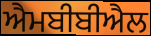
ਐਮਬੀਬੀਐਲ